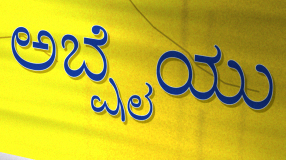
ಅಬ್ಷೈಯು